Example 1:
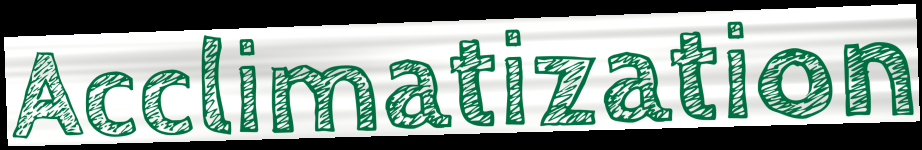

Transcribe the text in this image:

Acclimatization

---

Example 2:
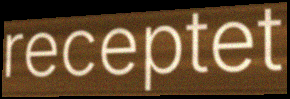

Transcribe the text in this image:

receptet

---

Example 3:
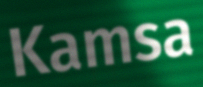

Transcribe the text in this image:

Kamsa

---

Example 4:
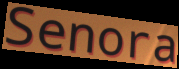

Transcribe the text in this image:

Senora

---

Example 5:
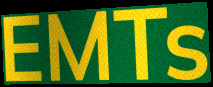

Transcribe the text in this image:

EMTs